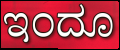
ಇಂದೂ